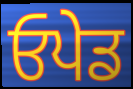
ਓਪੇਡ